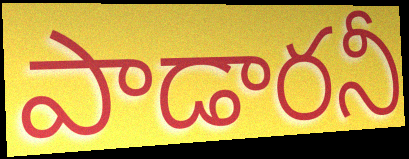
పాడారనీ